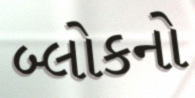
બ્લોકનો